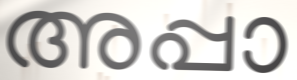
അപ്പാ